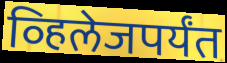
व्हिलेजपर्यंत